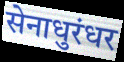
सेनाधुरंधर